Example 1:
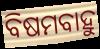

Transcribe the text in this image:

ବିଷମବାହୁ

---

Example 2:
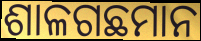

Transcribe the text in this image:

ଶାଳଗଛମାନ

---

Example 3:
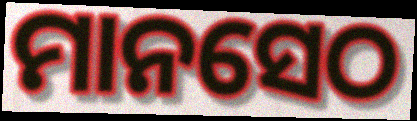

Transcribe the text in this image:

ମାନସେଠ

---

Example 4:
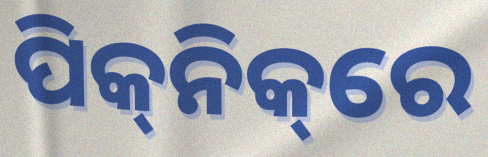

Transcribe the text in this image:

ପିକ୍‌ନିକ୍‌ରେ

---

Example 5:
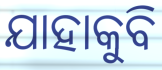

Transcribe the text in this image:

ଯାହାକୁବି